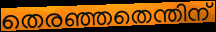
തെരഞ്ഞതെന്തിന്